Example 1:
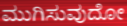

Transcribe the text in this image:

ಮುಗಿಸುವುದೋ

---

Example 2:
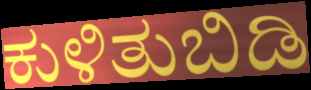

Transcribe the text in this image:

ಕುಳಿತುಬಿಡಿ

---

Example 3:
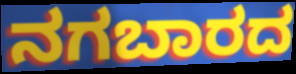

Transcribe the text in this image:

ನಗಬಾರದ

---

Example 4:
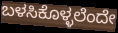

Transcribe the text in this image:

ಬಳಸಿಕೊಳ್ಳಲೆಂದೇ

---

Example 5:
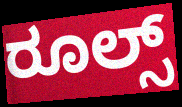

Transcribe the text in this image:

ರೂಲ್ಸ್